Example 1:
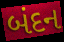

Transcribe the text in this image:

બંદન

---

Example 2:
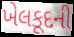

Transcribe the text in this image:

ખેલકૂદની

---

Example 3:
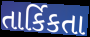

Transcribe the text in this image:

તાર્કિકતા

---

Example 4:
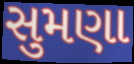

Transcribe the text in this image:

સુમણા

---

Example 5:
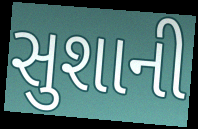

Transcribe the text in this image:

સુશાની